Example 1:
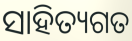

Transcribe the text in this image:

ସାହିତ୍ୟଗତ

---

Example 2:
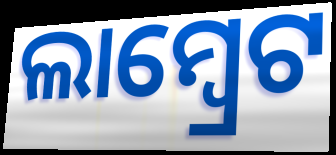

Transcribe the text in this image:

ଲାମ୍ୱ୍ରେଟ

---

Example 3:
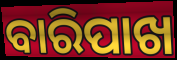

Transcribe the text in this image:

ବାରିପାଖ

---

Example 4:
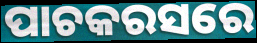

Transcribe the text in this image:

ପାଚକରସରେ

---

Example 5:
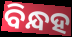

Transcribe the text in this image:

ବିନ୍ଧହ